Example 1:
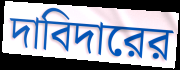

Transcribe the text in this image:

দাবিদারের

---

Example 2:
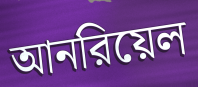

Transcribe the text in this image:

আনরিয়েল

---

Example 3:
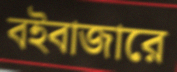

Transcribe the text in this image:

বইবাজারে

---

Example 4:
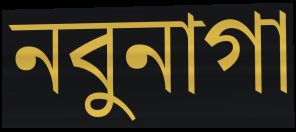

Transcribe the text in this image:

নবুনাগা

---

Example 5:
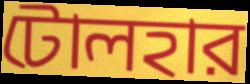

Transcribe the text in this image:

টোলহার